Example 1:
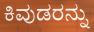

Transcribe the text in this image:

ಕಿವುಡರನ್ನು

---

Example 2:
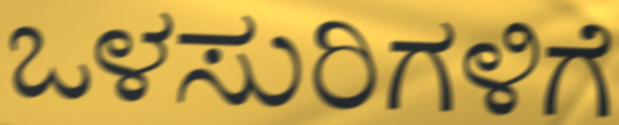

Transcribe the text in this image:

ಒಳಸುರಿಗಳಿಗೆ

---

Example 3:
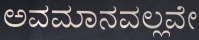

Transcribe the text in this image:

ಅವಮಾನವಲ್ಲವೇ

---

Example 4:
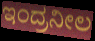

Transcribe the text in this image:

ಇಂದ್ರನೀಲ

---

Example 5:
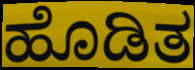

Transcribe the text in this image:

ಹೊಡಿತ